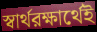
স্বার্থরক্ষার্থেই